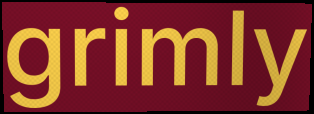
grimly